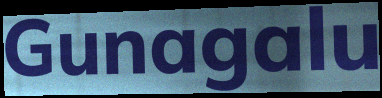
Gunagalu